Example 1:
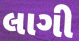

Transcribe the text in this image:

લાગી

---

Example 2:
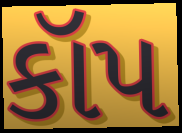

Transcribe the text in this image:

કૉપ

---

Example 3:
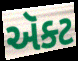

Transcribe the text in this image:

ઍૅક્ટ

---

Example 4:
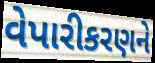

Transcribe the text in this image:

વેપારીકરણને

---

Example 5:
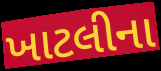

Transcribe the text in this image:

ખાટલીના